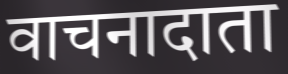
वाचनादाता